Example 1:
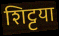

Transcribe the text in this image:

शिट्टया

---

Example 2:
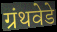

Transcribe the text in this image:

ग्रंथवेडे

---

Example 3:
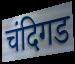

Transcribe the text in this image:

चंदिगड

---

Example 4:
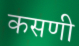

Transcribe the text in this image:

कसणी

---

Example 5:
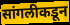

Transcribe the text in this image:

सांगलीकडून